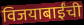
विजयाबाईंची